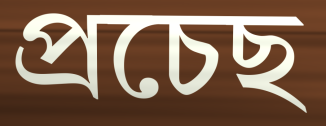
প্ৰচেছ